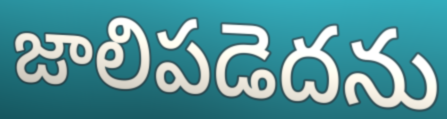
జాలిపడెదను